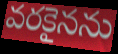
వరకైనను